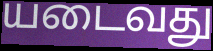
யடைவது